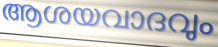
ആശയവാദവും